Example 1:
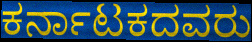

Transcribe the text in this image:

ಕರ್ನಾಟಕದವರು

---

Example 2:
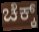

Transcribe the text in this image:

ಚೆಕ್ಕ್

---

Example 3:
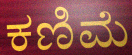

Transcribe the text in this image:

ಕಣಿಮೆ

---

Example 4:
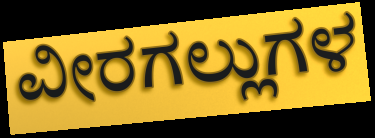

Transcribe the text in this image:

ವೀರಗಲ್ಲುಗಳ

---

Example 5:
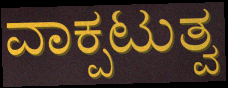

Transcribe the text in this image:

ವಾಕ್ಪಟುತ್ವ